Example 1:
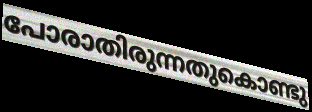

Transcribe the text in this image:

പോരാതിരുന്നതുകൊണ്ടു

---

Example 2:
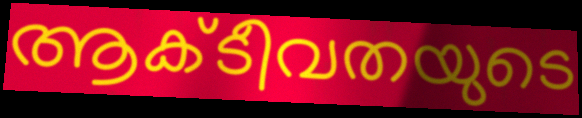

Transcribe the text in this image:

ആക്ടീവതയുടെ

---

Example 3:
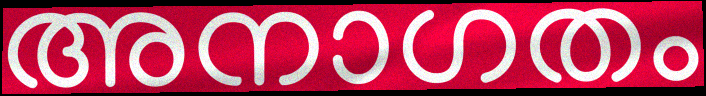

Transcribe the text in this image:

അനാഗതം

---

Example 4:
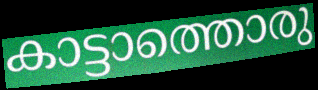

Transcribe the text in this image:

കാട്ടാത്തൊരു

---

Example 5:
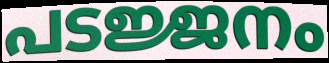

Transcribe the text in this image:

പടജ്ജനം